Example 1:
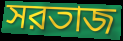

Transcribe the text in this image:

সরতাজ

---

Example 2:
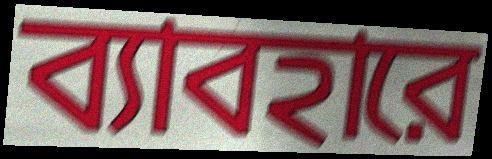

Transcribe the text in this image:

ব্যাবহারে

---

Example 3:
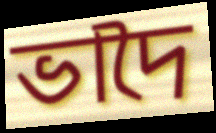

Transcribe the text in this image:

ভাদৈ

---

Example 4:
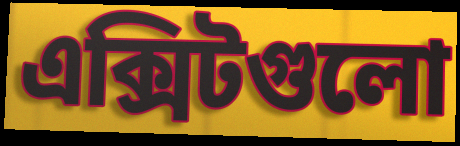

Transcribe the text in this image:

এক্সিটগুলো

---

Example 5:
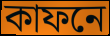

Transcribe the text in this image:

কাফনে